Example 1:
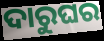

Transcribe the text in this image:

ଦାରୁଘର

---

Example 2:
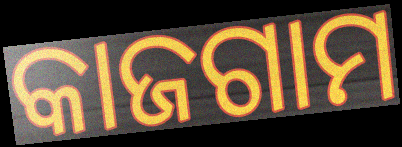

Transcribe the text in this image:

କାଜଗାମ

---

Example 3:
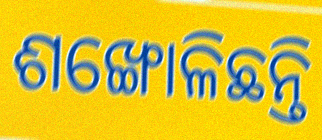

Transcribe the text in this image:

ଶଙ୍ଖୋଳିଛନ୍ତି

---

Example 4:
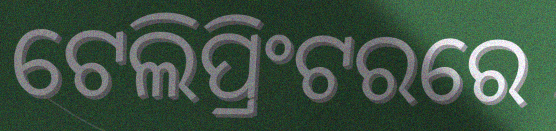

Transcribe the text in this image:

ଟେଲିପ୍ରିଂଟରରେ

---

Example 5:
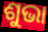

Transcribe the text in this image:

ଶୁଭା